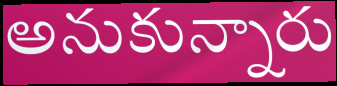
అనుకున్నారు